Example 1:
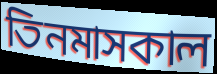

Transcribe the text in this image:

তিনমাসকাল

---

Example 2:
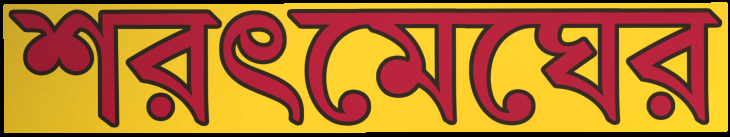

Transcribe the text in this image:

শরৎমেঘের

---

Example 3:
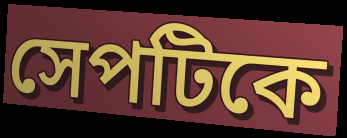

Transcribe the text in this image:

সেপটিকে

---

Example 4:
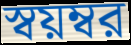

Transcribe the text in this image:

স্বয়ম্বর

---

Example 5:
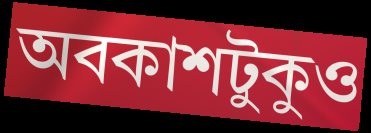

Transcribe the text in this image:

অবকাশটুকুও